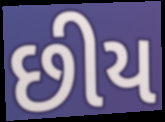
છીય